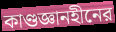
কাণ্ডজ্ঞানহীনের